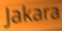
Jakara